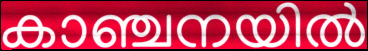
കാഞ്ചനയിൽ